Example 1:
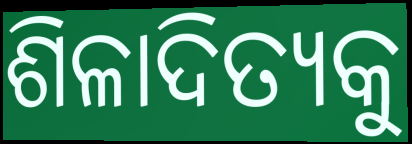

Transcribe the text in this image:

ଶିଳାଦିତ୍ୟକୁ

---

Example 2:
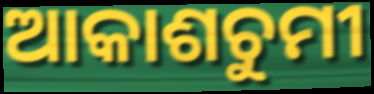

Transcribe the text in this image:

ଆକାଶଚୁମୀ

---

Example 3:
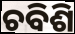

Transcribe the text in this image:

ଚବିଶି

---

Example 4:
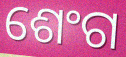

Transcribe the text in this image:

ଶେଂଗ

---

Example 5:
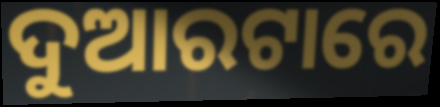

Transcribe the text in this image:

ଦୁଆରଟାରେ